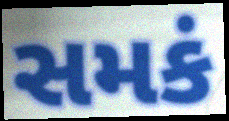
સમકં